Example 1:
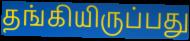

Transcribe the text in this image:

தங்கியிருப்பது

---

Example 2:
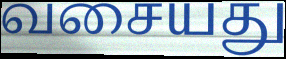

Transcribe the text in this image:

வசையது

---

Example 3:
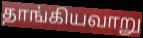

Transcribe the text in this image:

தாங்கியவாறு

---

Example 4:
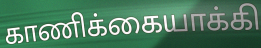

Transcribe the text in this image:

காணிக்கையாக்கி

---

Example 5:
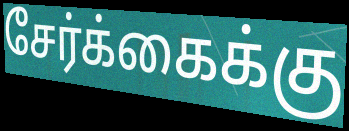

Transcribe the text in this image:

சேர்க்கைக்கு